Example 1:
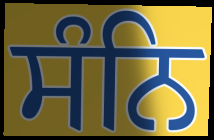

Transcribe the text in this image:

ਸੰਨਿ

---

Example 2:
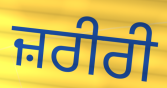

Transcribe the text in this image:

ਜ਼ਰੀਰੀ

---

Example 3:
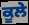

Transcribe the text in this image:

ਕੂਲੇ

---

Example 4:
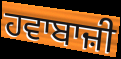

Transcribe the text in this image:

ਹਵਾਬਾਜ਼ੀ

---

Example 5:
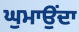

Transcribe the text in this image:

ਘੁਮਾਉਂਦਾ